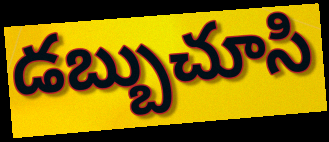
డబ్బుచూసి